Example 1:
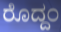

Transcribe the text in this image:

ರೊದ್ದಂ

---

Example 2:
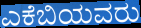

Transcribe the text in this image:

ಎಕೆಬಿಯವರು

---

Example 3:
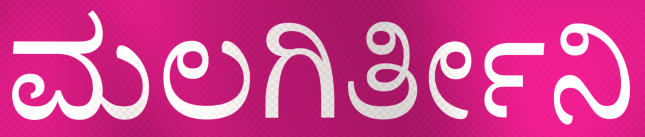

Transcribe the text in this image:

ಮಲಗಿರ್ತೀನಿ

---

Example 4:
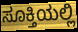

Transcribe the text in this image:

ಸೂಕ್ತಿಯಲ್ಲಿ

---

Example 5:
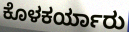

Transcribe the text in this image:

ಕೊಳಕರ್ಯಾರು